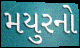
મયુરનો